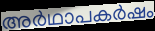
അർഥാപകർഷം